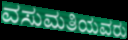
ವಸುಮತಿಯವರು